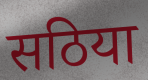
सठिया